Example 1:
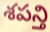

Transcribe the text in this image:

శపన్తి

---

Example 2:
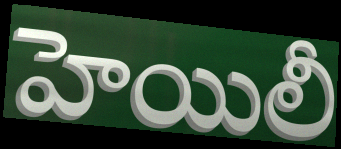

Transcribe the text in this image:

హెయిలీ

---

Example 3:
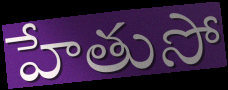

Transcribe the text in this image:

హేతుసో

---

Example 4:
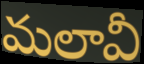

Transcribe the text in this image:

మలావీ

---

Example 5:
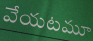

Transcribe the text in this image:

వేయటమూ